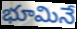
భూమినే